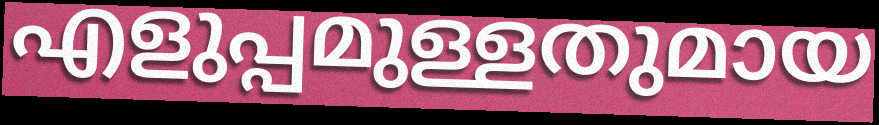
എളുപ്പമുള്ളതുമായ